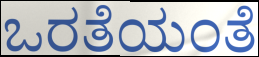
ಒರತೆಯಂತೆ